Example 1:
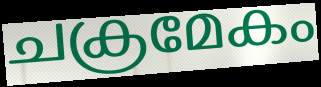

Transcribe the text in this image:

ചക്രമേകം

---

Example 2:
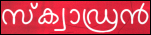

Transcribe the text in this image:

സ്ക്വാഡ്രൻ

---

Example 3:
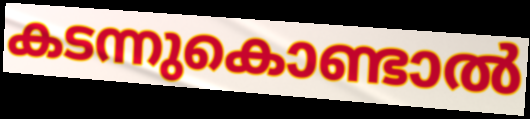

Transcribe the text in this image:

കടന്നുകൊണ്ടാൽ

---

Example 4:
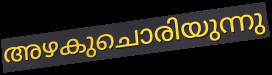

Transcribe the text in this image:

അഴകുചൊരിയുന്നു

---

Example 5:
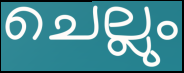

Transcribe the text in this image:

ചെല്ലും